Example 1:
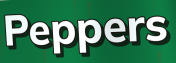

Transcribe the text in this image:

Peppers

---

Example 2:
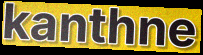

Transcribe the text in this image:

kanthne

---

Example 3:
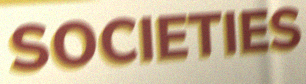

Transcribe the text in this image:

SOCIETIES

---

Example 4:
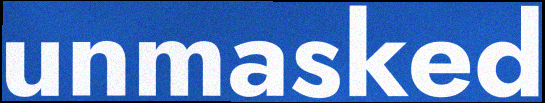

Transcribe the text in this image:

unmasked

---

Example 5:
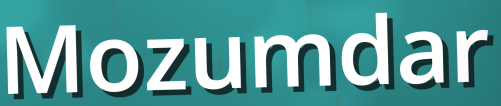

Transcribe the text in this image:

Mozumdar